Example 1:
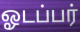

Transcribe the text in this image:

ஓடப்பர்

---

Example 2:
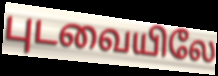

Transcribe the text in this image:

புடவையிலே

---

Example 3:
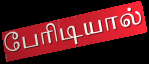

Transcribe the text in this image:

பேரிடியால்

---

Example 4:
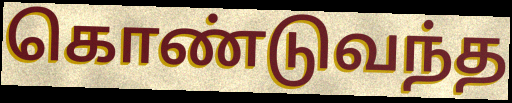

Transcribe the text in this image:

கொண்டுவந்த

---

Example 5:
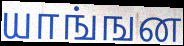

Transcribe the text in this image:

யாங்ஙன